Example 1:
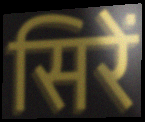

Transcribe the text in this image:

सिरें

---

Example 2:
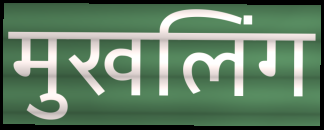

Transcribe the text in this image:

मुखलिंग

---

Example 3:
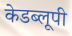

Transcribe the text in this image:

केडब्लूपी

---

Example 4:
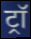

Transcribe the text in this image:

ट्रॉ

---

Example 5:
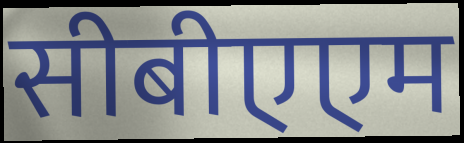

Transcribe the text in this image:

सीबीएएम